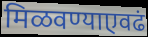
मिळवण्याएवढं